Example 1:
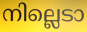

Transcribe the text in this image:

നില്ലെടാ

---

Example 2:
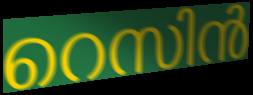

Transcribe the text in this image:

റെസിൻ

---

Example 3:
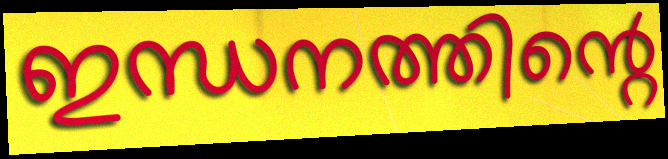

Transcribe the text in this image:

ഇന്ധനത്തിന്റെ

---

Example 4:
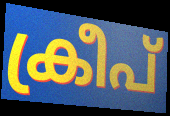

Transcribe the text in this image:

ക്രീപ്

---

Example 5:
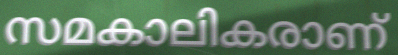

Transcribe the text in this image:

സമകാലികരാണ്